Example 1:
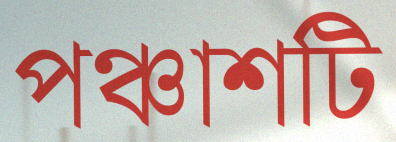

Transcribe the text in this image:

পঞ্চাশটি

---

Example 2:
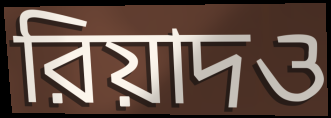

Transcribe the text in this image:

রিয়াদও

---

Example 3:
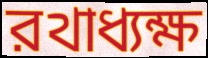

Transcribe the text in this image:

রথাধ্যক্ষ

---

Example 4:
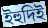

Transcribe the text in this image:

ইহুদিই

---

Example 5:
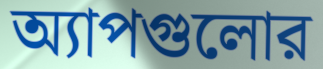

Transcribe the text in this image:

অ্যাপগুলোর